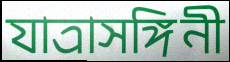
যাত্রাসঙ্গিনী